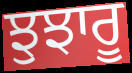
ਝੁਝਾਰੂ